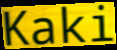
Kaki